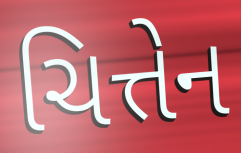
ચિત્તેન